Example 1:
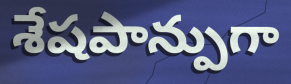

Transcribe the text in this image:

శేషపాన్పుగా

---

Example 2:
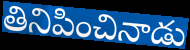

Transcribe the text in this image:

తినిపించినాడు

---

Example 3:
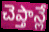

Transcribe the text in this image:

చెప్తాన్లే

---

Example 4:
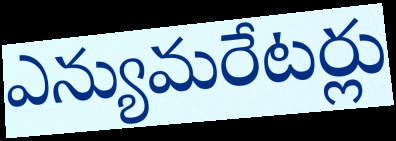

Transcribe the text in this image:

ఎన్యుమరేటర్లు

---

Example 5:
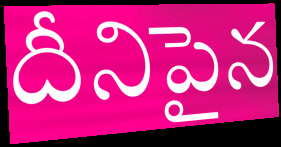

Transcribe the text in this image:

దీనిపైన